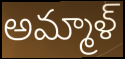
అమ్మాళ్